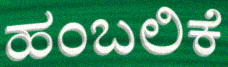
ಹಂಬಲಿಕೆ